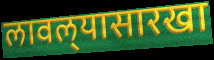
लावल्यासारखा